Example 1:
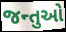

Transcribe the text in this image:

જન્તુઓ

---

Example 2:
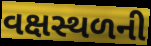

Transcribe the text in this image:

વક્ષસ્થળની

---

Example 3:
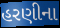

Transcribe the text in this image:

હરણીના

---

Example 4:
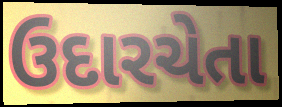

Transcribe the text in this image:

ઉદારચેતા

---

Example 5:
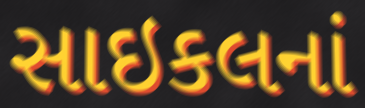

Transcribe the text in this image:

સાઇકલનાં